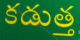
కడుత్త